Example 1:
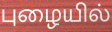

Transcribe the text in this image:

புழையில்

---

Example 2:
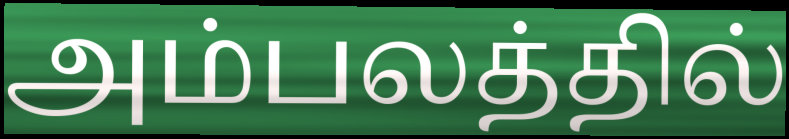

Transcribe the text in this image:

அம்பலத்தில்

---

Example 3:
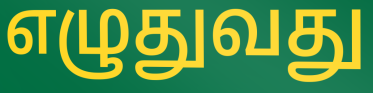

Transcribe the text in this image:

எழுதுவது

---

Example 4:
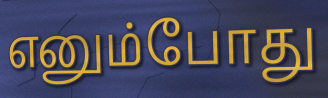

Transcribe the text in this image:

எனும்போது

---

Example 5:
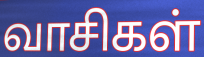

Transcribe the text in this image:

வாசிகள்